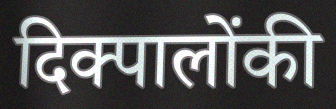
दिक्पालोंकी